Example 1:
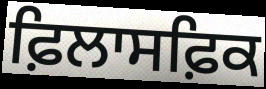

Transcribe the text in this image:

ਫ਼ਿਲਾਸਫ਼ਿਕ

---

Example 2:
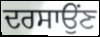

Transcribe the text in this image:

ਦਰਸਾਉਂਣ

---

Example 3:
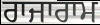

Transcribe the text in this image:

ਰਾਜਾਰਾਮ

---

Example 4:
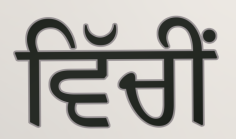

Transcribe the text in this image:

ਵਿੱਚੀਂ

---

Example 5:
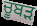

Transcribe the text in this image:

ਚੂਬੜ